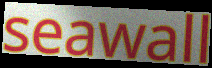
seawall